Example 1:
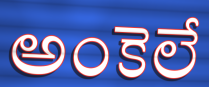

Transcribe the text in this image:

అంకెలే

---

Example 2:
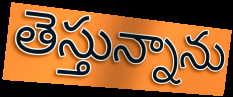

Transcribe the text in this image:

తెస్తున్నాను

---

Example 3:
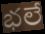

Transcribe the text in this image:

భలే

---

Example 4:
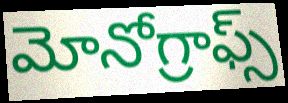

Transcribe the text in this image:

మోనోగ్రాఫ్స్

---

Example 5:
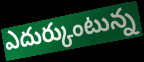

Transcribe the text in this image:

ఎదుర్కుంటున్న